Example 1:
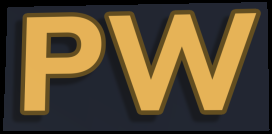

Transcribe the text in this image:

PW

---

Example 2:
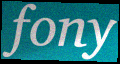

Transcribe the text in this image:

fony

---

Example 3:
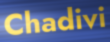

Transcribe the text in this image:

Chadivi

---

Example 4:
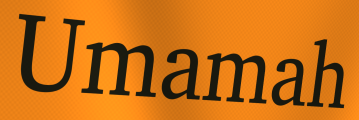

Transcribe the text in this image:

Umamah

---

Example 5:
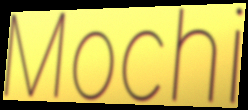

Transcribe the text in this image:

Mochi